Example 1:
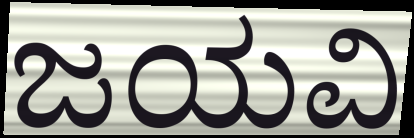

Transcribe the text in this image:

ಜಯವಿ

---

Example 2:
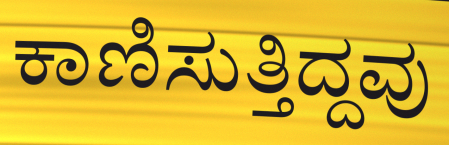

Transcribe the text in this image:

ಕಾಣಿಸುತ್ತಿದ್ದವು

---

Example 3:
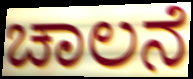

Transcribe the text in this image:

ಚಾಲನೆ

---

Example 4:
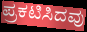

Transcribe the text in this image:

ಪ್ರಕಟಿಸಿದವು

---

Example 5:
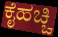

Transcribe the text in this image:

ಕೈಹಚ್ಚಿ